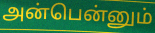
அன்பென்னும்